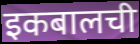
इकबालची